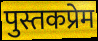
पुस्तकप्रेम